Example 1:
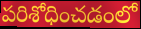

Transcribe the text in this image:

పరిశోధించడంలో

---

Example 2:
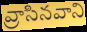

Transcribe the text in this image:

వ్రాసినవాని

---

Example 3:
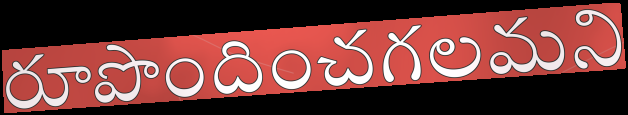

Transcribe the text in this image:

రూపొందించగలమని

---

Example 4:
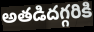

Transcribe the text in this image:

అతడిదగ్గరికి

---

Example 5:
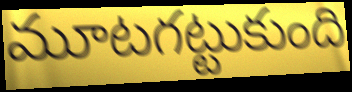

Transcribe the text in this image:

మూటగట్టుకుంది